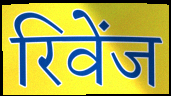
रिवेंज